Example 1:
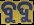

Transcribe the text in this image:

ବୁଦୁ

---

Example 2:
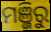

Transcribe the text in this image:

ମଞ୍ଜିରୁ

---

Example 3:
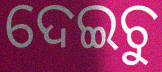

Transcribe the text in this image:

ଦେଇଚୁ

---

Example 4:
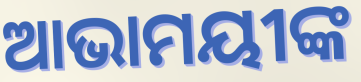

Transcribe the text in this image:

ଆଭାମୟୀଙ୍କ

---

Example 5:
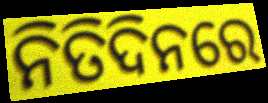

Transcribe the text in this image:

ନିତିଦିନରେ